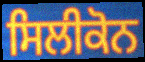
ਸਿਲੀਕੋਨ